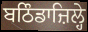
ਬਠਿੰਡਾਜ਼ਿਲ੍ਹੇ